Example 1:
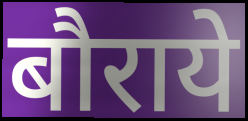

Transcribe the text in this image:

बौराये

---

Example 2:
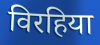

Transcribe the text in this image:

विरहिया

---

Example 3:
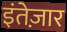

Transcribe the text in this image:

इंतेज़ार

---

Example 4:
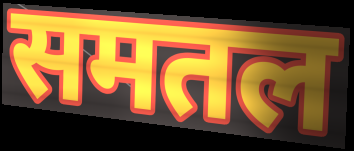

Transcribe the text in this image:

समतल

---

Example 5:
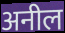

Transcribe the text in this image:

अनील